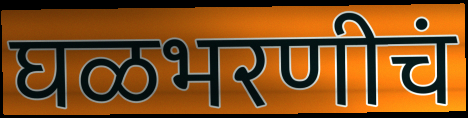
घळभरणीचं